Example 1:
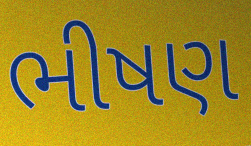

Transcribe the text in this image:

ભીષણ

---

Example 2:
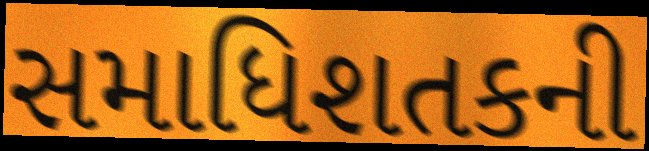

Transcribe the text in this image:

સમાધિશતકની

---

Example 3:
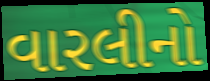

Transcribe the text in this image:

વારલીનો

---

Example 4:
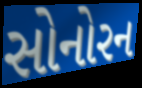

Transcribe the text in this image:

સોનોરન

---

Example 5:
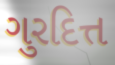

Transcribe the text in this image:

ગુરદિત્ત